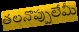
తలనొప్పులేమీ